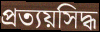
প্রত্যয়সিদ্ধ